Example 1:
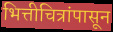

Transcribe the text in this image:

भित्तीचित्रांपासून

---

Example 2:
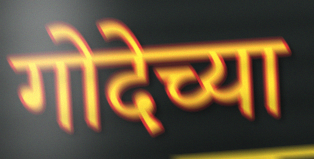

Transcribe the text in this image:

गोदेच्या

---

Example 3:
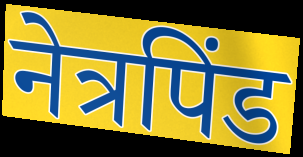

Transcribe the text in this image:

नेत्रपिंड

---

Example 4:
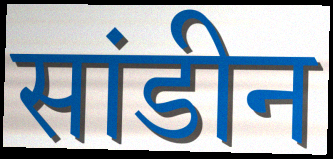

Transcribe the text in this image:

सांडीन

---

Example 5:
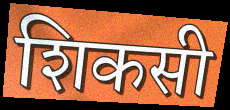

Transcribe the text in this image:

शिकसी